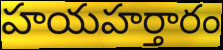
హయహర్తారం